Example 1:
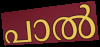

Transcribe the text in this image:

പാൽ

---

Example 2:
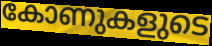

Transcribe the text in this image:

കോണുകളുടെ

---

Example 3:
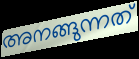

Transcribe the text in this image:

അനങ്ങുന്നത്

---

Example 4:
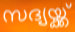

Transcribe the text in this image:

സദ്യയ്ക്ക്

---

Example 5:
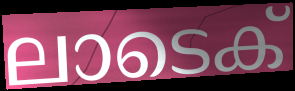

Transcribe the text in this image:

ലാടെക്